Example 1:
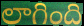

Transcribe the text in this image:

లాగింది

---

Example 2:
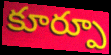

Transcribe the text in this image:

కూర్పూ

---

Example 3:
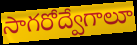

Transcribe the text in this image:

సాగరోద్వేగాలూ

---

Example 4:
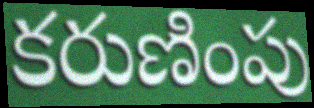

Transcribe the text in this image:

కరుణింపు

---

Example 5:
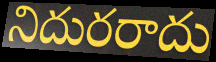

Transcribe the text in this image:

నిదురరాదు